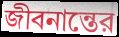
জীবনান্তের